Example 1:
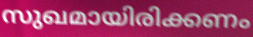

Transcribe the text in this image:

സുഖമായിരിക്കണം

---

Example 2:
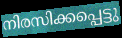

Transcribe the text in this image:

നിരസിക്കപ്പെട്ടു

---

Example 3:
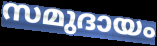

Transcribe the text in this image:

സമുദായം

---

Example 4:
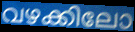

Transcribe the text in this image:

വഴക്കിലോ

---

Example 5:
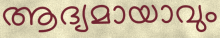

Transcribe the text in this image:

ആദ്യമായാവും